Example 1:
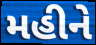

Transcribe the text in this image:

મહીને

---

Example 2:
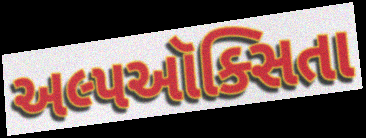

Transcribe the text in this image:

અલ્પઑક્સિતા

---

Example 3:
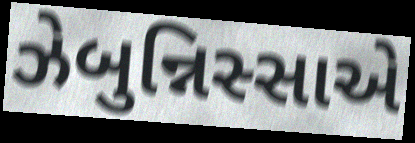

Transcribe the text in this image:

ઝેબુન્નિસ્સાએ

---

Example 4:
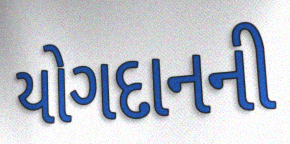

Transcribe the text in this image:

યોગદાનની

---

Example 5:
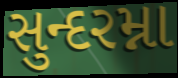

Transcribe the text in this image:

સુન્દરમ્ના